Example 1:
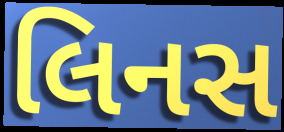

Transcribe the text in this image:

લિનસ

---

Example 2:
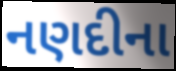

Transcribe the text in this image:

નણદીના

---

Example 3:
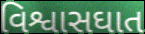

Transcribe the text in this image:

વિશ્વાસઘાત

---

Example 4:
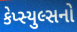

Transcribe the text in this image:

કેપ્સ્યુલ્સનો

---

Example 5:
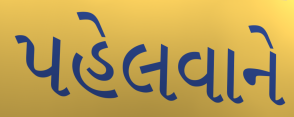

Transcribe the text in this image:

પહેલવાને